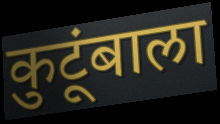
कुटूंबाला